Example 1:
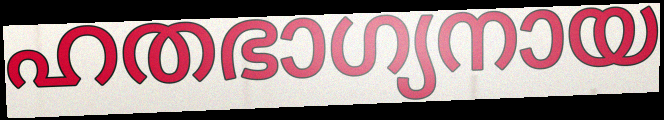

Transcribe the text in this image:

ഹതഭാഗ്യനായ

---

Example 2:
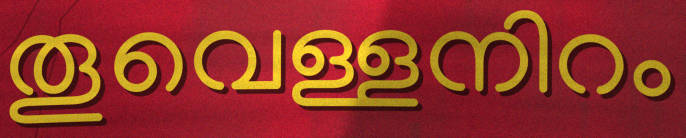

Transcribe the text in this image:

തൂവെള്ളനിറം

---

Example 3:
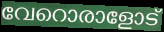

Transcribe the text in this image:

വേറൊരാളോട്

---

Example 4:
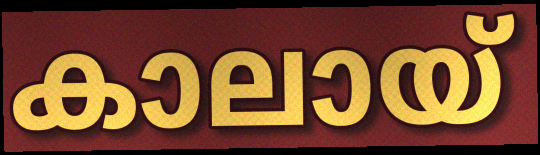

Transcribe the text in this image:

കാലായ്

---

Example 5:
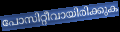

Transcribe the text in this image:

പോസിറ്റീവായിരിക്കുക